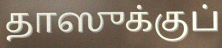
தாஸுக்குப்